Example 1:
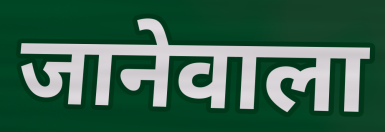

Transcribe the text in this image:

जानेवाला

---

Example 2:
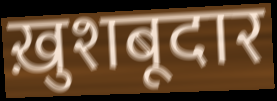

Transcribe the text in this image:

ख़ुशबूदार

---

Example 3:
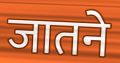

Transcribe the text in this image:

जातने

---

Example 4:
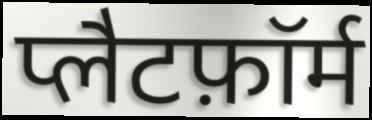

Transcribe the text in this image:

प्लैटफ़ॉर्म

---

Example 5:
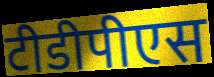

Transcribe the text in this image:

टीडीपीएस